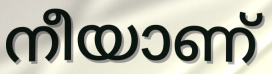
നീയാണ്